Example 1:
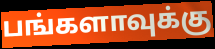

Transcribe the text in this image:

பங்களாவுக்கு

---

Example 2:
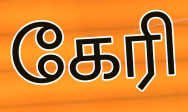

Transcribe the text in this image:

கேரி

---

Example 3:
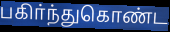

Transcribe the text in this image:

பகிர்ந்துகொண்ட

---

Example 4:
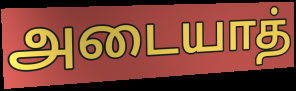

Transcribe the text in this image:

அடையாத்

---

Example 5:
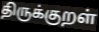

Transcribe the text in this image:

திருக்குறள்